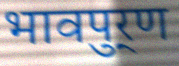
भावपुर्ण